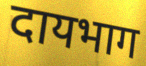
दायभाग